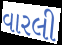
વારલી